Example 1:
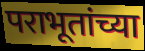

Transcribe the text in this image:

पराभूतांच्या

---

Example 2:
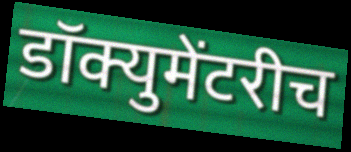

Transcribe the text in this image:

डॉक्युमेंटरीच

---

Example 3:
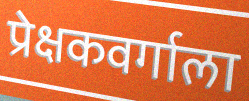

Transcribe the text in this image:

प्रेक्षकवर्गाला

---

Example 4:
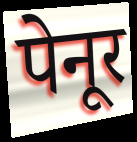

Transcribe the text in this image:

पेनूर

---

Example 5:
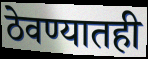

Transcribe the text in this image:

ठेवण्यातही